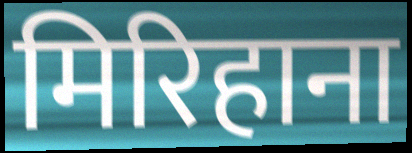
मिरिहाना